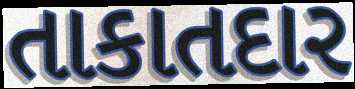
તાકાતદાર